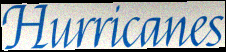
Hurricanes